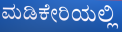
ಮಡಿಕೇರಿಯಲ್ಲಿ